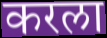
करला